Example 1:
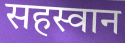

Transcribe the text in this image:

सहस्वान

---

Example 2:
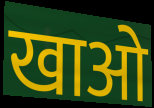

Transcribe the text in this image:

खाओ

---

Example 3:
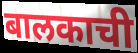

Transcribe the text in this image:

बालकाची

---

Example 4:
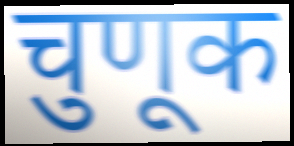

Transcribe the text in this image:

चुणूक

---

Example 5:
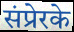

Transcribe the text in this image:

संप्रेरके